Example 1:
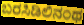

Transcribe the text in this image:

ಬರಸಿಡಿಲಿನಂಥ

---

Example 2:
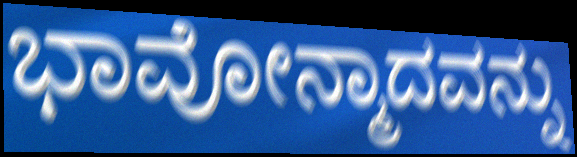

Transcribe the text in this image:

ಭಾವೋನ್ಮಾದವನ್ನು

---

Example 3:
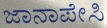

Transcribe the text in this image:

ಜಾನಾಪೇಸಿ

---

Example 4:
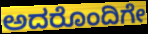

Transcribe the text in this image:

ಅದರೊಂದಿಗೇ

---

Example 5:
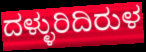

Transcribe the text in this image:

ದಳ್ಳುರಿದಿರುಳ